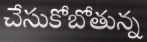
చేసుకోబోతున్న